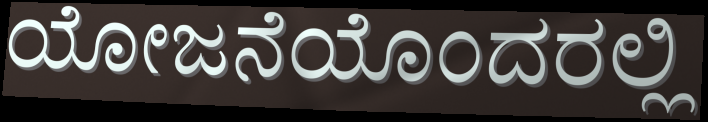
ಯೋಜನೆಯೊಂದರಲ್ಲಿ